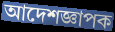
আদেশজ্ঞাপক